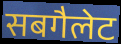
सबगैलेट